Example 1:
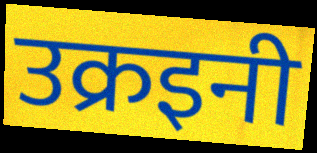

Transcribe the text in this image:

उक्रइनी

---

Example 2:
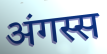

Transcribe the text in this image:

अंगस्स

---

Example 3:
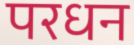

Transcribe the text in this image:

परधन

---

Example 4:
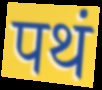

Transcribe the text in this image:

पथं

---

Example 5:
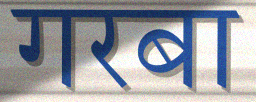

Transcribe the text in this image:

गरबा